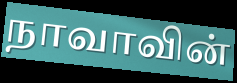
நாவாவின்